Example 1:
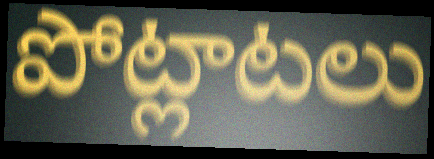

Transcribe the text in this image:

పోట్లాటలు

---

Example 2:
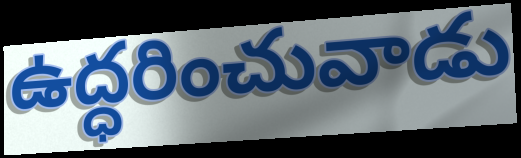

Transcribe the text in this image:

ఉద్ధరించువాడు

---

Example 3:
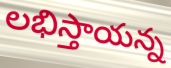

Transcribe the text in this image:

లభిస్తాయన్న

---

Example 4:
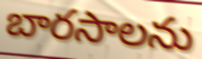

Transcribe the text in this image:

బారసాలను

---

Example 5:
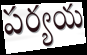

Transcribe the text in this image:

పర్యయ